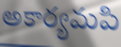
అకార్యమపి